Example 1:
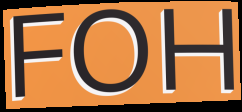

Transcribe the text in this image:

FOH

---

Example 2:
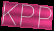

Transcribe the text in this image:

KPP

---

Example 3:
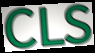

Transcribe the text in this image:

CLS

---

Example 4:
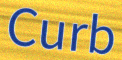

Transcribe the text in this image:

Curb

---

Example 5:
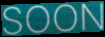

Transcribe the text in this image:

SOON